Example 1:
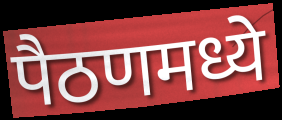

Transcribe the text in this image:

पैठणमध्ये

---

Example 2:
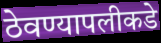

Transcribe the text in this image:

ठेवण्यापलीकडे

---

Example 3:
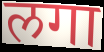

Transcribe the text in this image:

लगा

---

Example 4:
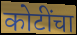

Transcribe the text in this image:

कोटींचा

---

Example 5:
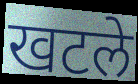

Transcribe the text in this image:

खटले